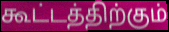
கூட்டத்திற்கும்